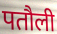
पतौली